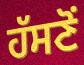
ਹੱਸਣੋਂ